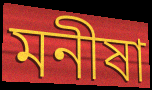
মনীষা